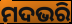
ମଦଭରି